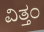
ವಿತ್ತಂ